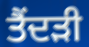
ਤੈਂਦੜੀ